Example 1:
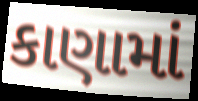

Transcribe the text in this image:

કાણામાં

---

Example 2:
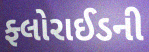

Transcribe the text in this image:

ફ્લોરાઈડની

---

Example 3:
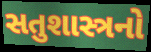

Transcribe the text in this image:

સતુશાસ્ત્રનો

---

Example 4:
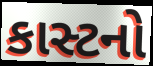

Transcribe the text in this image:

કાસ્ટનો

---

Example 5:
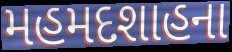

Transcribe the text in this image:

મહમદશાહના